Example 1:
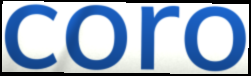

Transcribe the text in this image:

coro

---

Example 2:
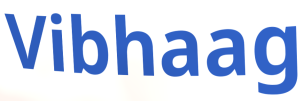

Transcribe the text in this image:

Vibhaag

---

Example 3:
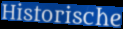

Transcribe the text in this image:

Historische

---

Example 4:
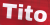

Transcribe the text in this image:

Tito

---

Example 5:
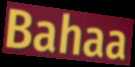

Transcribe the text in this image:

Bahaa